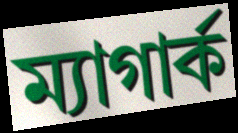
ম্যাগার্ক